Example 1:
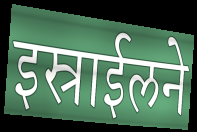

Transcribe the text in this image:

इस्राईलने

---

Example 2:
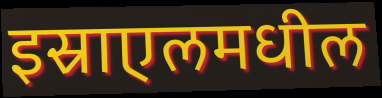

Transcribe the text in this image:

इस्राएलमधील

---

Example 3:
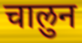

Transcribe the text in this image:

चालुन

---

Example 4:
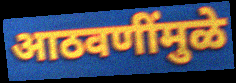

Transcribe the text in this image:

आठवणींमुळे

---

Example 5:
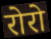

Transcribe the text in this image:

रोरो